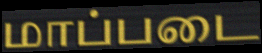
மாப்படை